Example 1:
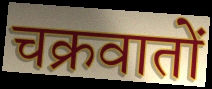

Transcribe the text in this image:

चक्रवातों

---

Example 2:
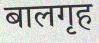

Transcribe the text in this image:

बालगृह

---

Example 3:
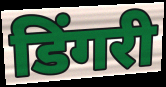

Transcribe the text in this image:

डिंगरी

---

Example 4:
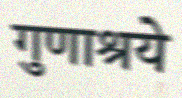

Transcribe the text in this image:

गुणाश्रये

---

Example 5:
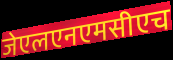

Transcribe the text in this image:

जेएलएनएमसीएच